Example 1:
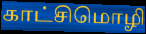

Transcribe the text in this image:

காட்சிமொழி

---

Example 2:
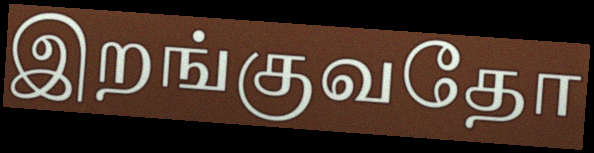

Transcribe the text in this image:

இறங்குவதோ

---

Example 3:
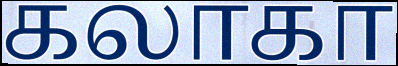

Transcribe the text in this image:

கலாகா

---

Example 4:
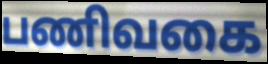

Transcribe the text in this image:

பணிவகை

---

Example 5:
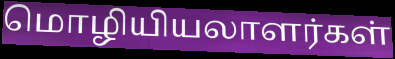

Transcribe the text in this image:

மொழியியலாளர்கள்